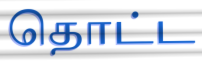
தொட்ட